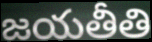
జయతీతి